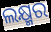
ଲକ୍ଷ୍ମର